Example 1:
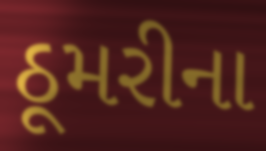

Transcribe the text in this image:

ઠૂમરીના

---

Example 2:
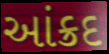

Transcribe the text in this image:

આંક્રદ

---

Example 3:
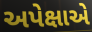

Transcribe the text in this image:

અપેક્ષાએ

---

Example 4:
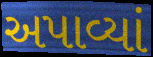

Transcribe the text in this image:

અપાવ્યાં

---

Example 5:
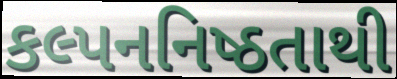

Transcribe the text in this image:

કલ્પનનિષ્ઠતાથી